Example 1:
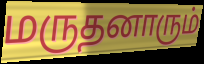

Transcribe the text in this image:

மருதனாரும்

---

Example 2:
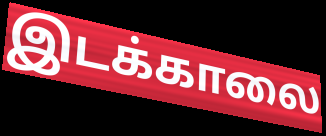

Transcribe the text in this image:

இடக்காலை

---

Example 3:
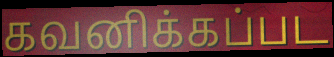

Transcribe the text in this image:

கவனிக்கப்பட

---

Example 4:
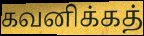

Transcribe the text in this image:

கவனிக்கத்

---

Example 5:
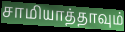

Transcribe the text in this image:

சாமியாத்தாவும்